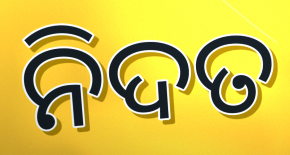
ନିଦତ